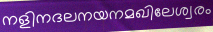
നളിനദലനയനമഖിലേശ്വരം